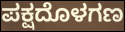
ಪಕ್ಷದೊಳಗಣ